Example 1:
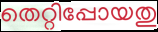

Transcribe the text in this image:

തെറ്റിപ്പോയതു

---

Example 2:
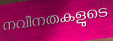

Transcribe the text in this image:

നവീനതകളുടെ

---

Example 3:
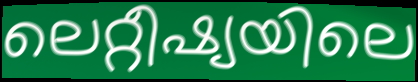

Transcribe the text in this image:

ലെറ്റീഷ്യയിലെ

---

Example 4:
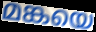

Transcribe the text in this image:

മങ്കയെ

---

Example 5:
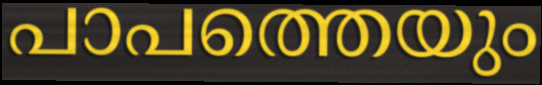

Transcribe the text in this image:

പാപത്തെയും